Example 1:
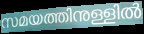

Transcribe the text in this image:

സമയത്തിനുള്ളിൽ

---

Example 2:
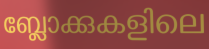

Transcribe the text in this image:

ബ്ലോക്കുകളിലെ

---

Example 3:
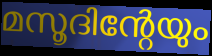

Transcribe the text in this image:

മസൂദിന്റേയും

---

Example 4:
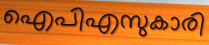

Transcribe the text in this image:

ഐപിഎസുകാരി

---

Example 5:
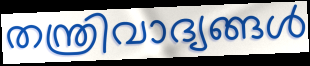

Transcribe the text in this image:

തന്ത്രിവാദ്യങ്ങൾ